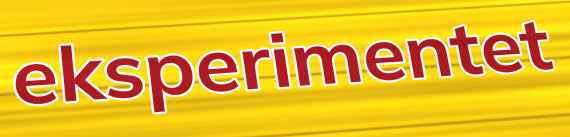
eksperimentet